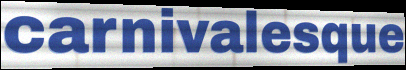
carnivalesque